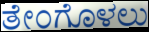
ತೇಂಗೊಳಲು